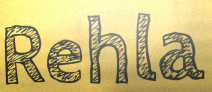
Rehla